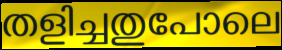
തളിച്ചതുപോലെ